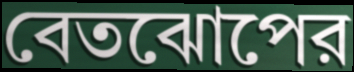
বেতঝোপের